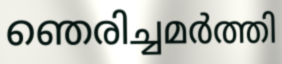
ഞെരിച്ചമർത്തി